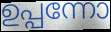
ഉപ്പന്നോ